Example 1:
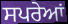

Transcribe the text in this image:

ਸਪਰੇਆਂ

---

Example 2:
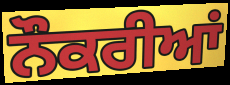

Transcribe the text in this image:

ਨੌਕਰੀਆਂ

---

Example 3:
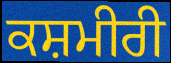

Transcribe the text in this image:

ਕਸ਼ਮੀਰੀ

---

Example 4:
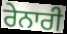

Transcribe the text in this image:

ਰੇਨਾਰੀ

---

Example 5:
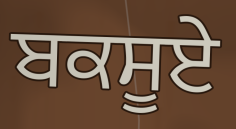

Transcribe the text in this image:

ਬਕਸੂਏ